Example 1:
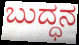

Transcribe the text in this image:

ಬುದ್ಧನ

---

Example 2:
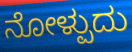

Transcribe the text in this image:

ನೋಳ್ಪುದು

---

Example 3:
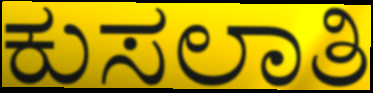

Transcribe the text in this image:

ಕುಸಲಾತಿ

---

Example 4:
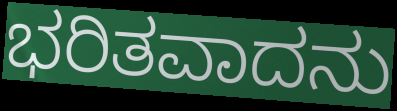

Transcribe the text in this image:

ಭರಿತವಾದನು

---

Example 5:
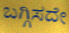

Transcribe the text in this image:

ಬಗ್ಗಿಸದೇ